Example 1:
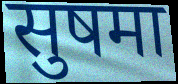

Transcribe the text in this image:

सुषमा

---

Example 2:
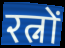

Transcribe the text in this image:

रत्नों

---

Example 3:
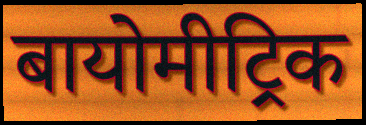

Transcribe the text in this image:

बायोमीट्रिक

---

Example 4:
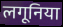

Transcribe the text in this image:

लगूनिया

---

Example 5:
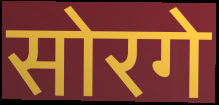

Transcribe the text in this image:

सोरगे